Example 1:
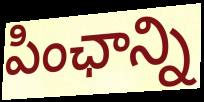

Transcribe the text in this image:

పింఛాన్ని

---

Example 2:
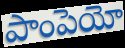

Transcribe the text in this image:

పాంపెయో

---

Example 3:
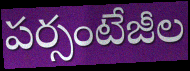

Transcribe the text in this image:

పర్సంటేజీల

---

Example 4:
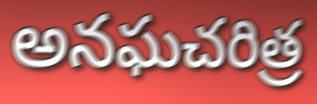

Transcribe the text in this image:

అనఘచరిత్ర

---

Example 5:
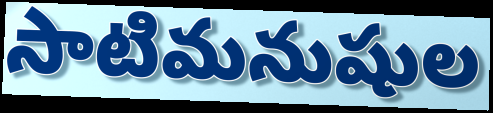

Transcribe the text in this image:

సాటిమనుషుల